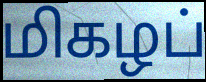
மிகழப்